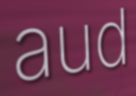
aud